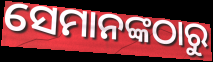
ସେମାନଙ୍କଠାରୁ